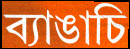
ব্যাঙাচি